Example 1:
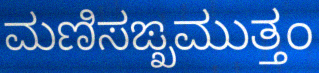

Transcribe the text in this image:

ಮಣಿಸಙ್ಖಮುತ್ತಂ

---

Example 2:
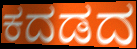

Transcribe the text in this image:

ಕದಡದ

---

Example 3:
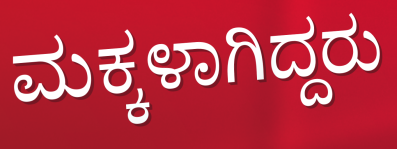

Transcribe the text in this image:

ಮಕ್ಕಳಾಗಿದ್ದರು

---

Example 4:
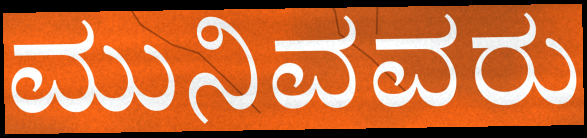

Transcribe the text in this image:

ಮುನಿವವರು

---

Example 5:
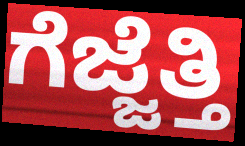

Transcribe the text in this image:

ಗೆಜ್ಜೆತ್ತಿ